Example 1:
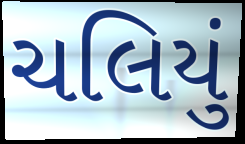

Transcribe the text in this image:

ચલિયું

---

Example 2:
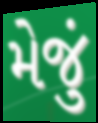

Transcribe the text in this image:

મેજું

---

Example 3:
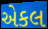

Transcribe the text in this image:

એકલ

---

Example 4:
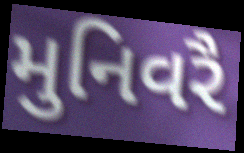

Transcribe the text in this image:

મુનિવરૈ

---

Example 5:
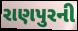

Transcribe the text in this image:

રાણપુરની